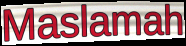
Maslamah